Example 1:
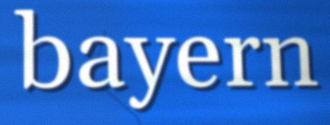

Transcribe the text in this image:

bayern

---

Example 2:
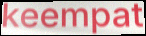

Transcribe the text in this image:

keempat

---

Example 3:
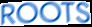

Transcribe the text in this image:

ROOTS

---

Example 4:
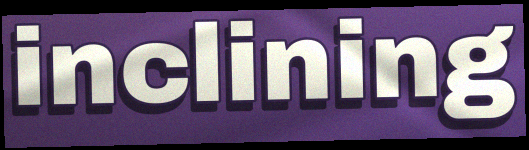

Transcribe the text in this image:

inclining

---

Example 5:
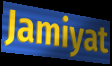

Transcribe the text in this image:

Jamiyat